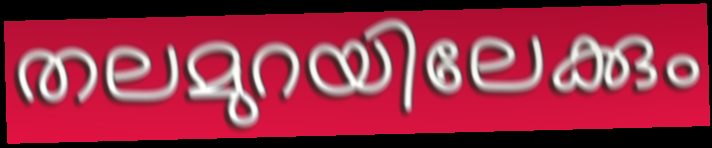
തലമുറയിലേക്കും